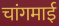
चांगमाई